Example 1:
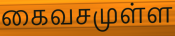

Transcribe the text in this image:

கைவசமுள்ள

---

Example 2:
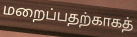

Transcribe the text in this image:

மறைப்பதற்காகத்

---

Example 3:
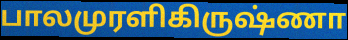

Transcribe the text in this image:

பாலமுரளிகிருஷ்ணா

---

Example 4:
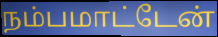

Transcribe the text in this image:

நம்பமாட்டேன்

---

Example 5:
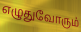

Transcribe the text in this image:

எழுதுவோரும்